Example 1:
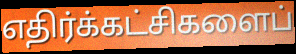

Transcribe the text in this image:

எதிர்க்கட்சிகளைப்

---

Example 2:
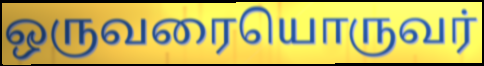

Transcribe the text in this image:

ஒருவரையொருவர்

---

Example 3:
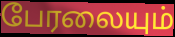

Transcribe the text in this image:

பேரலையும்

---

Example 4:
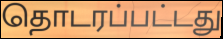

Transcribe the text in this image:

தொடரப்பட்டது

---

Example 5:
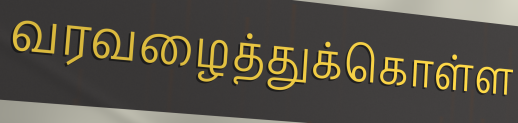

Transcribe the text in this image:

வரவழைத்துக்கொள்ள